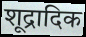
शूद्रादिक